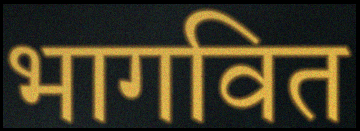
भागवित